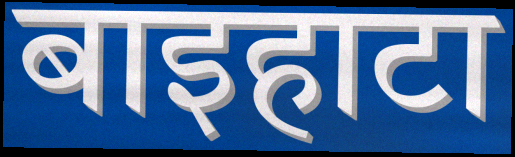
बाइहाटा